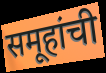
समूहांची